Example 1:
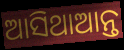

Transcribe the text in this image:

ଆସିଥାଆନ୍ତ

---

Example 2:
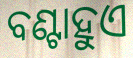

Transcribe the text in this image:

ବଣ୍ଟାହୁଏ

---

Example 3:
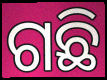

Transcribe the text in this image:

ଗଛି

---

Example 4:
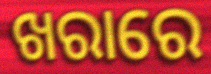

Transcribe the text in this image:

ଖରାରେ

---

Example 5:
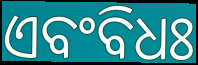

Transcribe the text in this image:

ଏବଂବିଧଃ